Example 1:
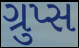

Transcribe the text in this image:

ગ્રુપ્સ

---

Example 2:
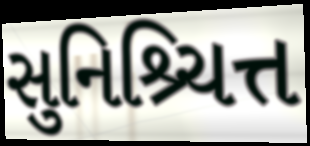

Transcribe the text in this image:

સુનિશ્ર્ચિત્ત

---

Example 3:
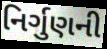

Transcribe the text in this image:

નિર્ગુણની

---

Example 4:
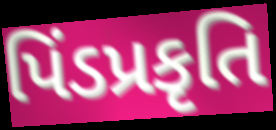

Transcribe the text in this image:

પિંડપ્રકૃતિ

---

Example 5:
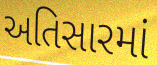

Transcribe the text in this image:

અતિસારમાં